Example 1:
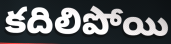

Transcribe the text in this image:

కదిలిపోయి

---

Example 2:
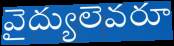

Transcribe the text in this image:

వైద్యులెవరూ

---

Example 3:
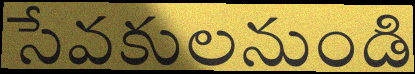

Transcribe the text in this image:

సేవకులనుండి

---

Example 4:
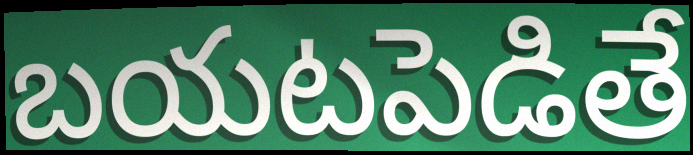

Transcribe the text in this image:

బయటపెడితే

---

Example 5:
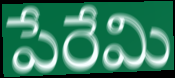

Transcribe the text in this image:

పేరేమి